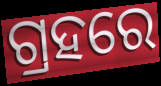
ଗ୍ରହରେ